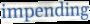
impending